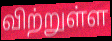
விற்றுள்ள